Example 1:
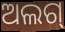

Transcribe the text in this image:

ଅଲଗ୍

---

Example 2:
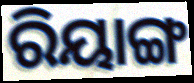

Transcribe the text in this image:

ରିୟାଙ୍ଗ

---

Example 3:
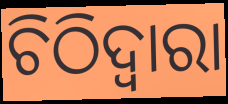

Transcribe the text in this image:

ଚିଠିଦ୍ୱାରା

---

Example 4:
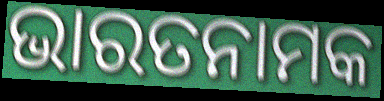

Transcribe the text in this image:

ଭାରତନାମକ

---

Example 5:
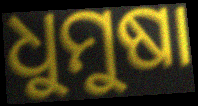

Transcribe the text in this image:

ଧୁମୁଷା